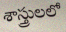
శాస్త్రులలో